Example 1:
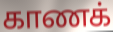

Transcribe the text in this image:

காணக்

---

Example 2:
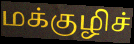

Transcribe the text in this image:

மக்குழிச்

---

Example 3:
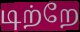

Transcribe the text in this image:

டிற்றே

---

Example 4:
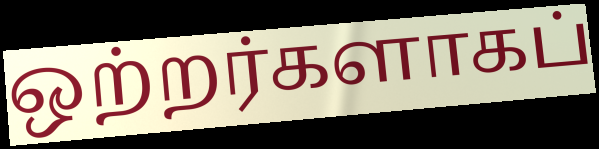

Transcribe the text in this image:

ஒற்றர்களாகப்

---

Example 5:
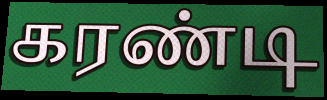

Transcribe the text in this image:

கரண்டி